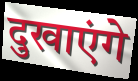
दुखाएंगे